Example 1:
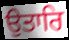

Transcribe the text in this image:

ਉਤਾਰਿ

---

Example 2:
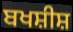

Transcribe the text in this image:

ਬਖਸ਼ੀਸ਼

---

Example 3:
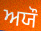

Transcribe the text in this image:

ਅਯੌ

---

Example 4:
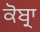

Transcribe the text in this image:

ਕੋਬ੍ਰਾ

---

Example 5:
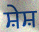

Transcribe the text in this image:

ਸ਼ੇਸ਼